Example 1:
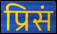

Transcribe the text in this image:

प्रिसं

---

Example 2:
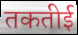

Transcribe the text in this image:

तकतीई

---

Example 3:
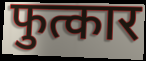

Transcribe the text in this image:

फुत्कार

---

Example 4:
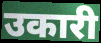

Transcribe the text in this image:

उकारी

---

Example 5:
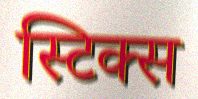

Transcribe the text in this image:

स्टिक्स